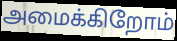
அமைக்கிறோம்